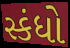
સ્કંધો